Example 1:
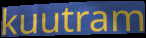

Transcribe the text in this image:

kuutram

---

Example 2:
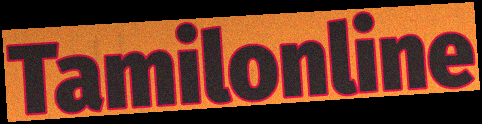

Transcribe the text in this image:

Tamilonline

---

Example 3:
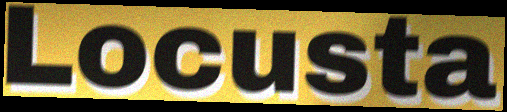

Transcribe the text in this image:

Locusta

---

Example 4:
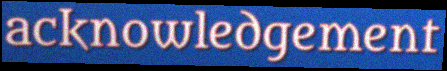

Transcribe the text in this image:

acknowledgement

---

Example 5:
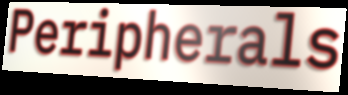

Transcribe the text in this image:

Peripherals